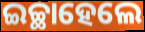
ଇଚ୍ଛାହେଲେ